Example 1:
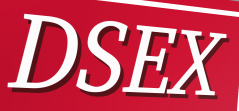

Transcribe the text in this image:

DSEX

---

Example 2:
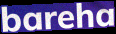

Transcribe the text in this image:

bareha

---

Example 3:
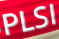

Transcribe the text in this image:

PLSI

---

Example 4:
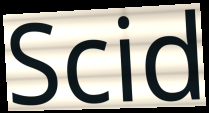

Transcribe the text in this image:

Scid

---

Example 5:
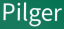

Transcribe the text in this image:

Pilger